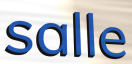
salle